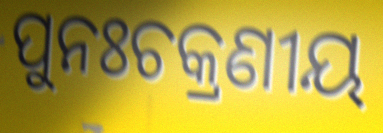
ପୁନଃଚକ୍ରଣୀୟ